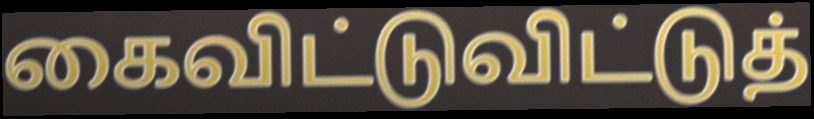
கைவிட்டுவிட்டுத்